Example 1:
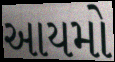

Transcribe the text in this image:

આયમો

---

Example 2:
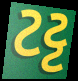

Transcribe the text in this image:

ટટ્ટ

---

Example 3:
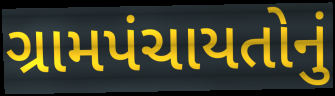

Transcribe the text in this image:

ગ્રામપંચાયતોનું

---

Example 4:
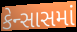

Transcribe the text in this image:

કેન્સાસમાં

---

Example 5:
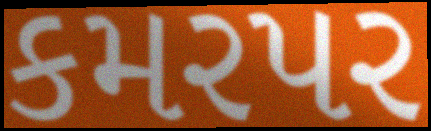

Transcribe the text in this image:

કમરપર